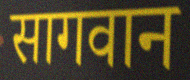
सागवान